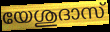
യേശുദാസ്